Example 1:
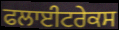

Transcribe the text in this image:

ਫਲਾਈਟਰੇਕਸ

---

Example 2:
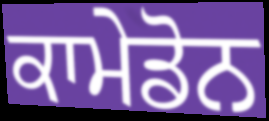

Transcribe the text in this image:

ਕਾਮੇਡੋਨ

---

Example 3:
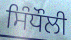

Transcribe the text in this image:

ਸਿੰਧੌਲੀ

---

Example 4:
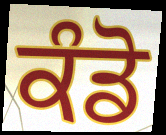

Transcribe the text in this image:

ਕੰਡੋ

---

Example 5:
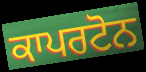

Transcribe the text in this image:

ਕਾਪਰਟੋਨ